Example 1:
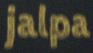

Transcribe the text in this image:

jalpa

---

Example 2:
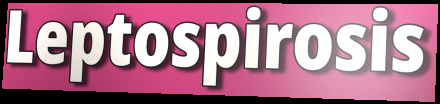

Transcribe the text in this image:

Leptospirosis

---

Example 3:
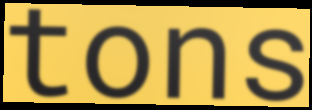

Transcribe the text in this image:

tons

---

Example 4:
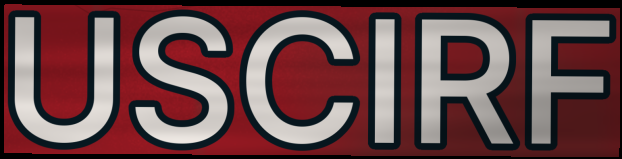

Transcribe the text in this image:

USCIRF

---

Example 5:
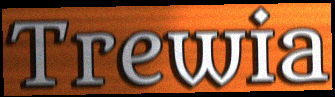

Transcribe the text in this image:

Trewia